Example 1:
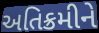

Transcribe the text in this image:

અતિક્રમીને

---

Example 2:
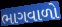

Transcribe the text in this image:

ભાગવાળો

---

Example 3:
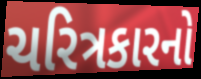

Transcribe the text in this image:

ચરિત્રકારનો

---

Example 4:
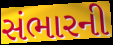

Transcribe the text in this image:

સંભારની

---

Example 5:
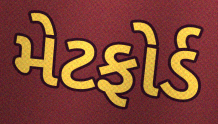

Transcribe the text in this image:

મેટફોર્ડ